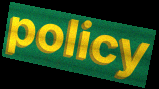
policy